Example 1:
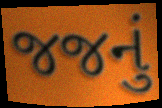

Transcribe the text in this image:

જજનું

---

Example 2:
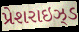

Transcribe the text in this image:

પ્રેશરાઇઝ્ડ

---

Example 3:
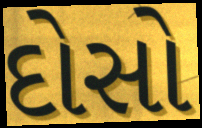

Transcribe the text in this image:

દોસો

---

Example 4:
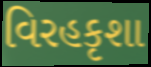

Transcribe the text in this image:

વિરહકૃશા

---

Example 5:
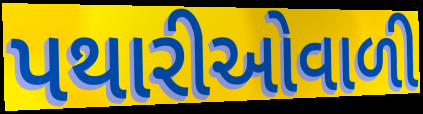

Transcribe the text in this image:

પથારીઓવાળી